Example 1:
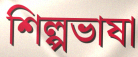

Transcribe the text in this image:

শিল্পভাষা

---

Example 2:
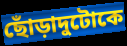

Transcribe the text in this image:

ছোঁড়াদুটোকে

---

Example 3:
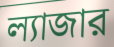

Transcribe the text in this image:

ল্যাজার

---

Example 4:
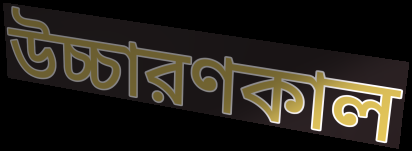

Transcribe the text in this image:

উচ্চারণকাল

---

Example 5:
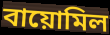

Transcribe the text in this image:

বায়োমিল